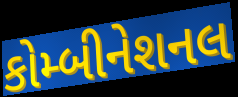
કોમ્બીનેશનલ